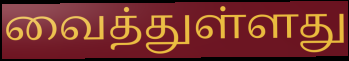
வைத்துள்ளது